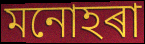
মনোহৰা